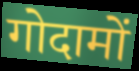
गोदामों